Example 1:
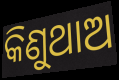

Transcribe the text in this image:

କିଣୁଥାଅ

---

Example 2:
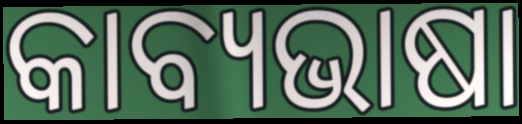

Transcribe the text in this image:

କାବ୍ୟଭାଷା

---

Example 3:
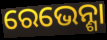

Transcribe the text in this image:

ରେଭେନ୍ଶା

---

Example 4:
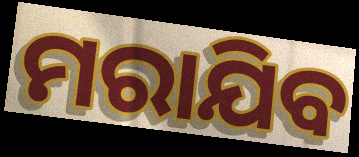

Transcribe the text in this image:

ମରାଯିବ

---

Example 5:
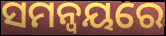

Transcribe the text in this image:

ସମନ୍ବୟରେ